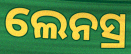
ଲେନସ୍ର